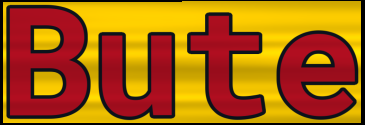
Bute